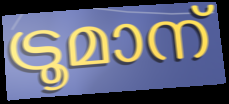
ട്രൂമാന്